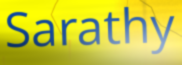
Sarathy